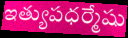
ఇత్యుపధర్మేషు